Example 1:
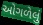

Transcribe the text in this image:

ઓગળેલું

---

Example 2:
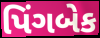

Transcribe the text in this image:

પિંગબેક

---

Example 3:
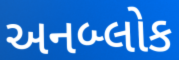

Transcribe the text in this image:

અનબ્લોક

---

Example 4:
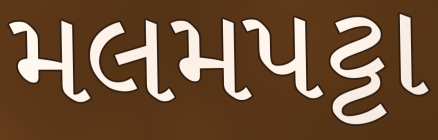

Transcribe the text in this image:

મલમપટ્ટા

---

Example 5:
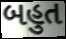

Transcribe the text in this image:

બહુત